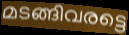
മടങ്ങിവരട്ടെ